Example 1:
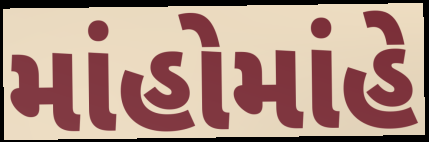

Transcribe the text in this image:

માંહોમાંહે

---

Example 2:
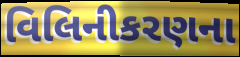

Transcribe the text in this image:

વિલિનીકરણના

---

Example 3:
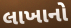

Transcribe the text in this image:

લાખાનો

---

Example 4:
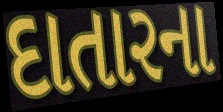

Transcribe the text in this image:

દાતારના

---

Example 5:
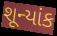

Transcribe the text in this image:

શૂન્યાંક